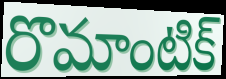
రొమాంటిక్